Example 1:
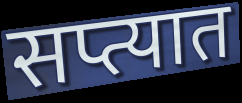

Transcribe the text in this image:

सप्त्यात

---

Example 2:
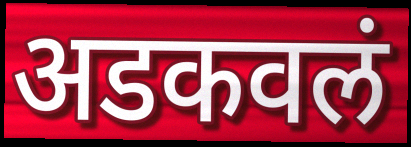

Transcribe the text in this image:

अडकवलं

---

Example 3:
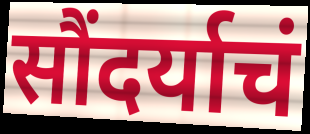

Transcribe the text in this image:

सौंदर्याचं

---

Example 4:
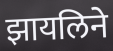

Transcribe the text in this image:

झायलिने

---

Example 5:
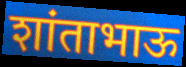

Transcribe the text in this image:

शांताभाऊ